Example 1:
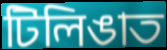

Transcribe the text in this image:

টিলিঙাত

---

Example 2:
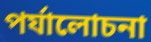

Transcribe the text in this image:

পৰ্যালোচনা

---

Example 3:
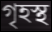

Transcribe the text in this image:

গৃহস্থ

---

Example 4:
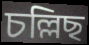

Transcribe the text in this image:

চল্লিছ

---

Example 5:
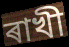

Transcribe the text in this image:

ৰাখী